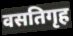
वसतिगृह